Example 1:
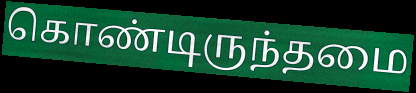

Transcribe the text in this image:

கொண்டிருந்தமை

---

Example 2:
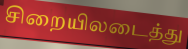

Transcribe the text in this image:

சிறையிலடைத்து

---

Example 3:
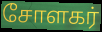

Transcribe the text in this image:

சோளகர்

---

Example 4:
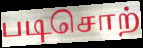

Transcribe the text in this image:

படிசொற்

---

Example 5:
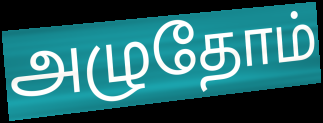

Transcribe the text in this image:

அழுதோம்